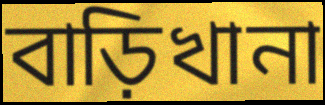
বাড়িখানা